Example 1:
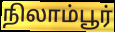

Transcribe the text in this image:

நிலாம்பூர்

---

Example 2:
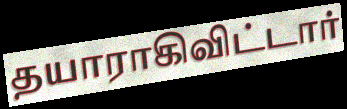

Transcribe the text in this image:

தயாராகிவிட்டார்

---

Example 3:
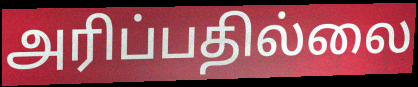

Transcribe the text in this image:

அரிப்பதில்லை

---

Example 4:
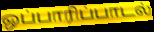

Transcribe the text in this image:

ஒப்பாரிப்பாடல்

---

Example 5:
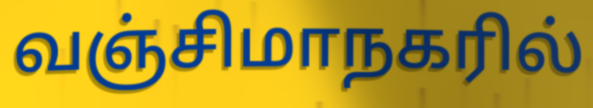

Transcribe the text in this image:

வஞ்சிமாநகரில்